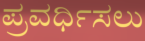
ಪ್ರವರ್ಧಿಸಲು